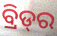
ବ୍ରିଡ୍‌ର